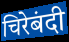
चिरेबंदी